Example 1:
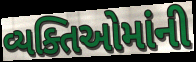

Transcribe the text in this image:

વ્યક્તિઓમાંની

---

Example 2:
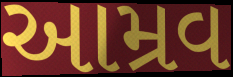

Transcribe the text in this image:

આમ્રવ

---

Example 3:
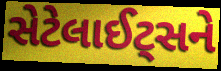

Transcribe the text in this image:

સેટેલાઈટ્સને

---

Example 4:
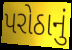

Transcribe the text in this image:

પરોઠાનું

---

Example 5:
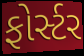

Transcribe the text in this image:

ફોર્સ્ટર